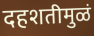
दहशतीमुळं